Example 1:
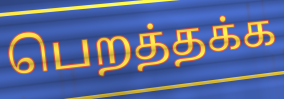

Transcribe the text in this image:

பெறத்தக்க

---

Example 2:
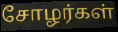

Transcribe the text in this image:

சோழர்கள்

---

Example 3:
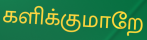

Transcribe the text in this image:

களிக்குமாறே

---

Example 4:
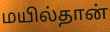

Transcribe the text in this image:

மயில்தான்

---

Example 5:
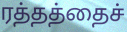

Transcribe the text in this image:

ரத்தத்தைச்